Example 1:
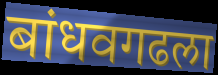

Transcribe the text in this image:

बांधवगढला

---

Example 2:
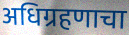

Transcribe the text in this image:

अधिग्रहणाचा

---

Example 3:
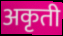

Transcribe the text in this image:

अकृती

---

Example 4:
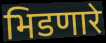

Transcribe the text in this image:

भिडणारे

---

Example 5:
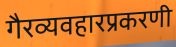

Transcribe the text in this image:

गैरव्यवहारप्रकरणी